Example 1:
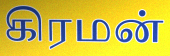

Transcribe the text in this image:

கிரமன்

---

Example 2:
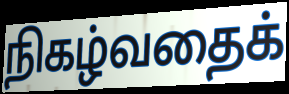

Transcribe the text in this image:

நிகழ்வதைக்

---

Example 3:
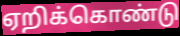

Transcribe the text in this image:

ஏறிக்கொண்டு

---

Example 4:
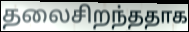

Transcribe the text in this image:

தலைசிறந்ததாக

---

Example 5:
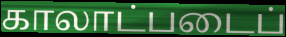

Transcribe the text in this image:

காலாட்படைப்